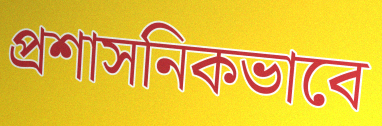
প্রশাসনিকভাবে